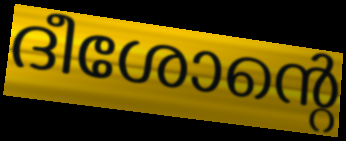
ദീശോന്റെ